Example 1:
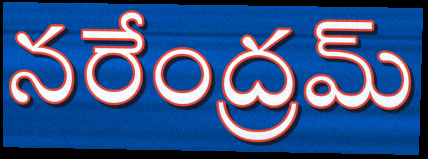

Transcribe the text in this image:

నరేంద్రమ్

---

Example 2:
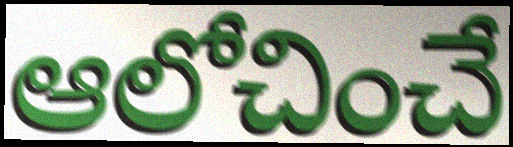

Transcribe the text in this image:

ఆలోచించే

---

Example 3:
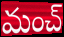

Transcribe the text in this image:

మంచ్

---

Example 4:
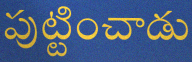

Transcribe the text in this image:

పుట్టించాడు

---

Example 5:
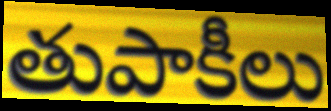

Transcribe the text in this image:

తుపాకీలు